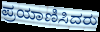
ಪ್ರಯಾಣಿಸಿದರು